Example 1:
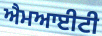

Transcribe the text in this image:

ਐਮਆਈਟੀ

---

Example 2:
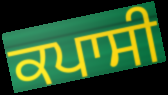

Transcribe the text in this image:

ਕਪਾਸੀ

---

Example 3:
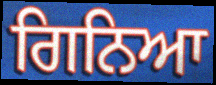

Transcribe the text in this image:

ਗਿਨਿਆ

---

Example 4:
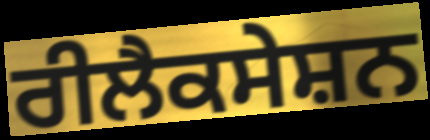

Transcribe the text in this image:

ਰੀਲੈਕਸੇਸ਼ਨ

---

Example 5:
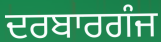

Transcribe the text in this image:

ਦਰਬਾਰਗੰਜ